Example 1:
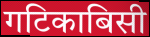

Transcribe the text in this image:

गटिकाबिसी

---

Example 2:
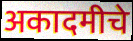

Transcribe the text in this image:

अकादमीचे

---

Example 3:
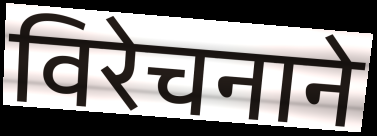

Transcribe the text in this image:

विरेचनाने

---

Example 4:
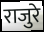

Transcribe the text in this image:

राजुरे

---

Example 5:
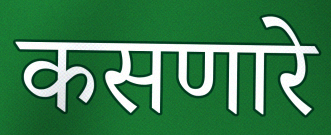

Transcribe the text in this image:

कसणारे